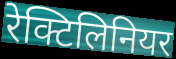
रेक्टिलिनियर